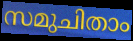
സമുചിതാം